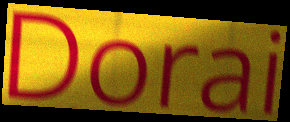
Dorai